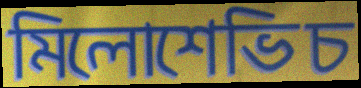
মিলোশেভিচ